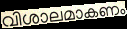
വിശാലമാകണം